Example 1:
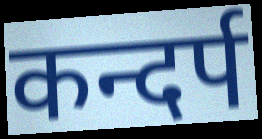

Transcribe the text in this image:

कन्दर्प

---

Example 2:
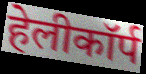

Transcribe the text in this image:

हेलीकॉर्प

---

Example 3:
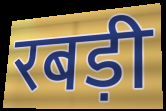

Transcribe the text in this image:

रबड़ी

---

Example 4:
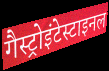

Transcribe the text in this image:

गैस्ट्रोइंटेस्टाइनल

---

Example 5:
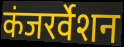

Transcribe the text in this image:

कंजरर्वेशन